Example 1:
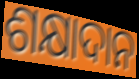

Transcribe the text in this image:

ଶକ୍ଷାଦାନ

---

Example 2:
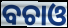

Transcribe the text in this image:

ବଚାଓ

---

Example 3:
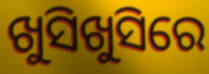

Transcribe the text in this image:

ଖୁସିଖୁସିରେ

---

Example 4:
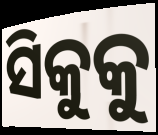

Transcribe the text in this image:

ସିକୁକୁ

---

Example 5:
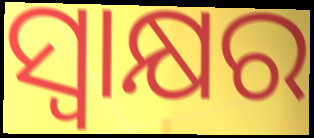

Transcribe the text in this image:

ସ୍ବାକ୍ଷର